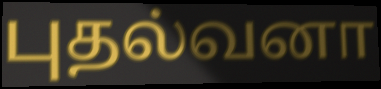
புதல்வனா